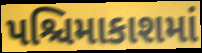
પશ્ચિમાકાશમાં